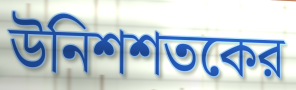
উনিশশতকের